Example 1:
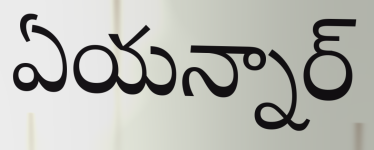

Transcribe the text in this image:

ఏయన్నార్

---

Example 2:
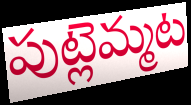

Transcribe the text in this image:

పుట్లెమ్మట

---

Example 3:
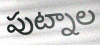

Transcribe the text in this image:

పుట్నాల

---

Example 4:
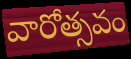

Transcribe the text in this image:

వారోత్సవం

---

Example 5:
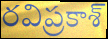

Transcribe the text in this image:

రవిప్రకాశ్